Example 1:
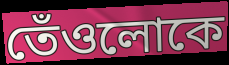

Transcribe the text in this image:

তেঁওলোকে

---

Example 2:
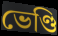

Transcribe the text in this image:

ভেণ্ডি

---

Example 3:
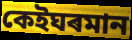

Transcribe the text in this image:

কেইঘৰমান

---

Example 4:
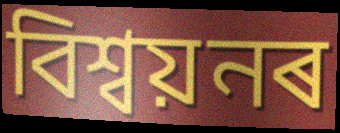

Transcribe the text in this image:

বিশ্বয়নৰ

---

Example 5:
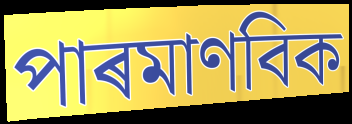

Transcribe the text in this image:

পাৰমাণবিক